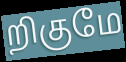
றிகுமே